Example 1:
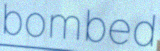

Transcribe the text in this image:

bombed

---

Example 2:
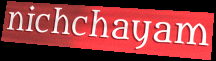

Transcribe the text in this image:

nichchayam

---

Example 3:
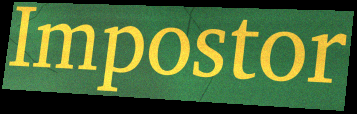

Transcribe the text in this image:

Impostor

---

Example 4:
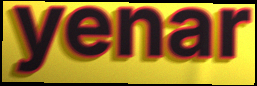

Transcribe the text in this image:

yenar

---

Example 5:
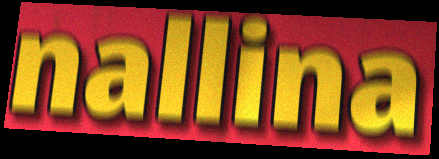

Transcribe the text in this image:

nallina